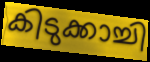
കിടുക്കാച്ചി